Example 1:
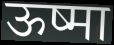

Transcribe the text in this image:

ऊष्मा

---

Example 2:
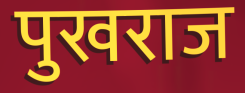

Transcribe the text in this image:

पुखराज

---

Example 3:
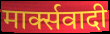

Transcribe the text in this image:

मार्क्सवादी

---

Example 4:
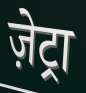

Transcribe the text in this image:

ज़ेट्रा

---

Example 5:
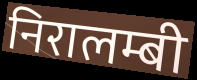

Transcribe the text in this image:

निरालम्बी